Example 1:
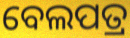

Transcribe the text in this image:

ବେଲପତ୍ର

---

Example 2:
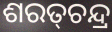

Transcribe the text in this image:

ଶରତ୍‌ଚନ୍ଦ୍ର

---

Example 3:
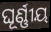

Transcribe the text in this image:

ଘୂର୍ଣ୍ଣୀୟ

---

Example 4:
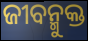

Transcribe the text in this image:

ଜୀବନ୍ମୁକ୍ତ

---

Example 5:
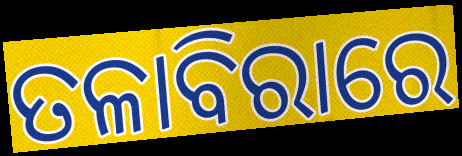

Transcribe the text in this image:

ତଳାବିରାରେ